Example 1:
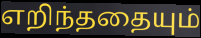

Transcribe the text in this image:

எறிந்ததையும்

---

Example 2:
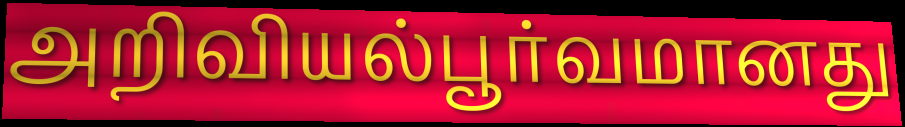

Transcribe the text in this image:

அறிவியல்பூர்வமானது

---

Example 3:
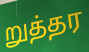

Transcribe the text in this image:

றுத்தர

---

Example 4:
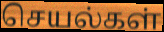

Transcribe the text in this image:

செயல்கள்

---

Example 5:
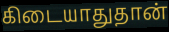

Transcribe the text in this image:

கிடையாதுதான்